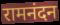
रामनंदन